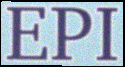
EPI